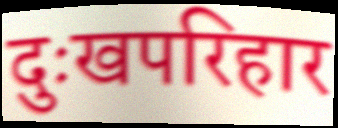
दुःखपरिहार